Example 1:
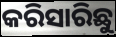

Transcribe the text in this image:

କରିସାରିଛୁ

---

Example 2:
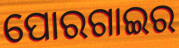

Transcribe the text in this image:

ପୋରଗାଇର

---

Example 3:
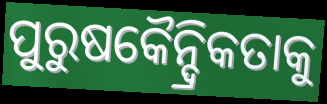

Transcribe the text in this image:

ପୁରୁଷକୈନ୍ଦ୍ରିକତାକୁ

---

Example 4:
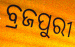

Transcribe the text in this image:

ବ୍ରଜପୁରୀ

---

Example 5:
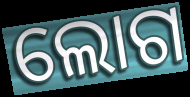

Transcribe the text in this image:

ଲୋଗ